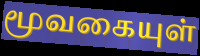
மூவகையுள்